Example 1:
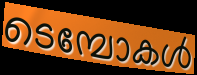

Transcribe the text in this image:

ടെമ്പോകൾ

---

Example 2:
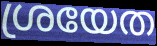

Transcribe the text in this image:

ശ്രയേത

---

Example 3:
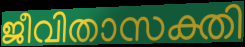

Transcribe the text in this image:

ജീവിതാസക്തി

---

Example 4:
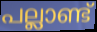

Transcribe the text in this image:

പല്ലാണ്ട്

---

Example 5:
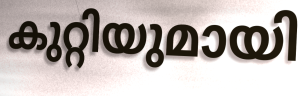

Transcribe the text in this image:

കുറ്റിയുമായി